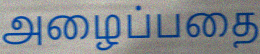
அழைப்பதை